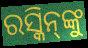
ରସ୍କିନ୍‌ଙ୍କୁ